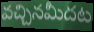
వచ్చినమీదట